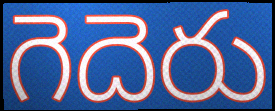
గెదెరు